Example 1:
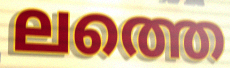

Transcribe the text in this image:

ലത്തെ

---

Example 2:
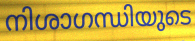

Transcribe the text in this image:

നിശാഗന്ധിയുടെ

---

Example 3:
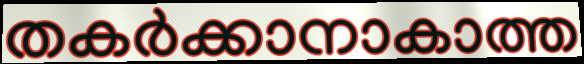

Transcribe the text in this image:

തകർക്കാനാകാത്ത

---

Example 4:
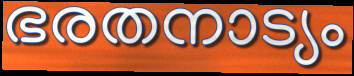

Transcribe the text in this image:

ഭരതനാട്യം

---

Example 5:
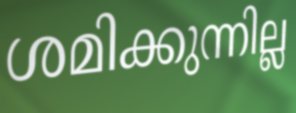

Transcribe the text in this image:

ശമിക്കുന്നില്ല